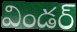
విండర్